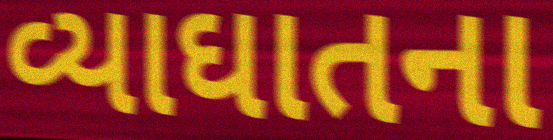
વ્યાઘાતના